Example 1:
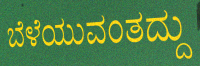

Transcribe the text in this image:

ಬೆಳೆಯುವಂತದ್ದು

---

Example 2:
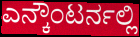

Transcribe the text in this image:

ಎನ್ಕೌಂಟರ್ನಲ್ಲಿ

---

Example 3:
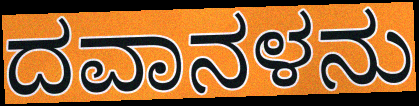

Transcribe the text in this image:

ದವಾನಳನು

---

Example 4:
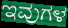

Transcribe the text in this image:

ಇವುಗಳ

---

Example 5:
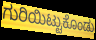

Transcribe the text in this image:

ಗುರಿಯಿಟ್ಟುಕೊಂಡು